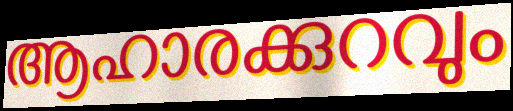
ആഹാരക്കുറവും